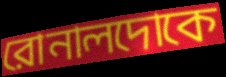
রোনালদোকে